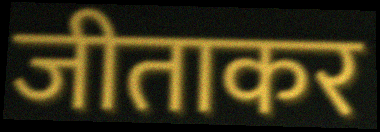
जीताकर